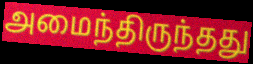
அமைந்திருந்தது